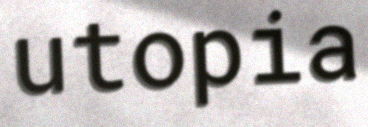
utopia